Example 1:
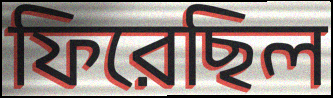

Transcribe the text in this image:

ফিরেছিল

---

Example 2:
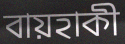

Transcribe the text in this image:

বায়হাকী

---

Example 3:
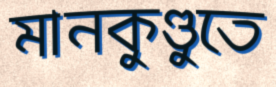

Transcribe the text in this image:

মানকুণ্ডুতে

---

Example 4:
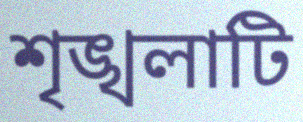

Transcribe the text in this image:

শৃঙ্খলাটি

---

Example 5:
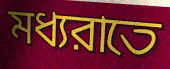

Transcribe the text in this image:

মধ্যরাতে